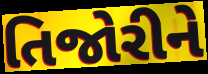
તિજોરીને